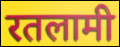
रतलामी